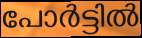
പോർട്ടിൽ